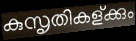
കുസൃതികള്ക്കും